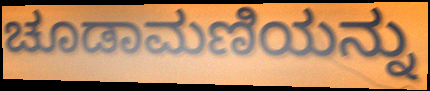
ಚೂಡಾಮಣಿಯನ್ನು